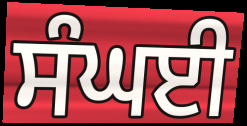
ਸੰਘਈ